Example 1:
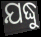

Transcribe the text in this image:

ଯଦ୍ଧୁ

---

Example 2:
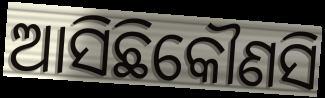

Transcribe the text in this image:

ଆସିଛିକୌଣସି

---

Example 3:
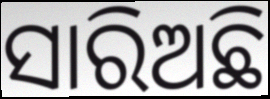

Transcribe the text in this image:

ସାରିଅଛି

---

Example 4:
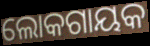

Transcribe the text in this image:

ଲୋକଗାୟକ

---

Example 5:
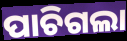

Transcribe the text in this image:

ପାଚିଗଲା